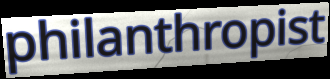
philanthropist